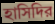
হাসিদির